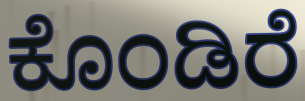
ಕೊಂಡಿರೆ